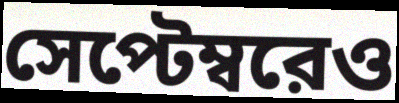
সেপ্টেম্বরেও